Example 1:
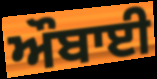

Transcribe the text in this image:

ਔਬਾਈ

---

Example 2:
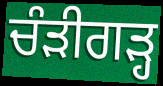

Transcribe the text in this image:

ਚੰੜੀਗੜ੍ਹ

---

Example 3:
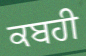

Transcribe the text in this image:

ਕਬਹੀ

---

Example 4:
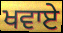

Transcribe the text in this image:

ਖਵਾਏ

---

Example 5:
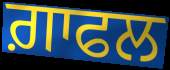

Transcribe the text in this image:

ਗ਼ਾਫਲ